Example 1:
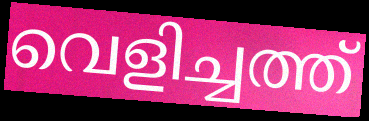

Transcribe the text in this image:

വെളിച്ചത്ത്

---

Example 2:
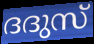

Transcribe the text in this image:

ദദുസ്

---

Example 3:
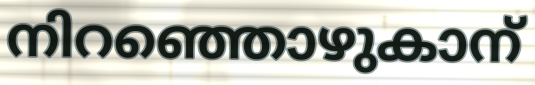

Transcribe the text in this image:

നിറഞ്ഞൊഴുകാന്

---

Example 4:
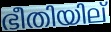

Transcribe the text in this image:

ഭീതിയില്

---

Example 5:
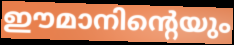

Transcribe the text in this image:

ഈമാനിന്റെയും